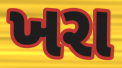
ખરા